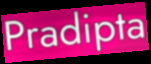
Pradipta